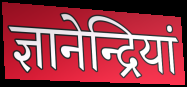
ज्ञानेन्द्रियां